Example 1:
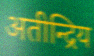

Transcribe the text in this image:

अतीन्द्रिय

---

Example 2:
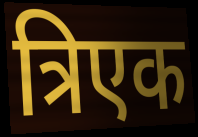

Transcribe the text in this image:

त्रिएक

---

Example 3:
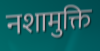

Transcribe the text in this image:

नशामुक्ति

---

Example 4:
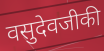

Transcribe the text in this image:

वसुदेवजीकी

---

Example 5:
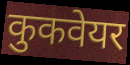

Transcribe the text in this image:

कुकवेयर